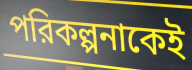
পরিকল্পনাকেই